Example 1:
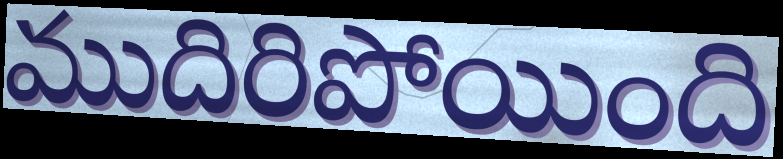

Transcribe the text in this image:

ముదిరిపోయింది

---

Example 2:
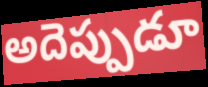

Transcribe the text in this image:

అదెప్పుడూ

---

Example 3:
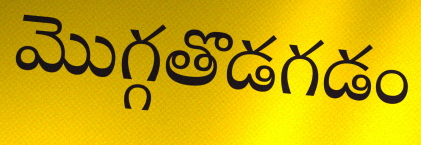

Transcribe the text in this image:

మొగ్గతొడగడం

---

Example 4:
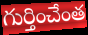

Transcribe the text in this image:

గుర్తించేంత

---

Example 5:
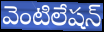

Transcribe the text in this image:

వెంటిలేషన్